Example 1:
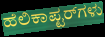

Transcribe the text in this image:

ಹೆಲಿಕಾಪ್ಟರ್‌ಗಳು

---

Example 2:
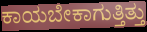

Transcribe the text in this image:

ಕಾಯಬೇಕಾಗುತ್ತಿತ್ತು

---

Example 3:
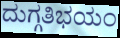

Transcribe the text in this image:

ದುಗ್ಗತಿಭಯಂ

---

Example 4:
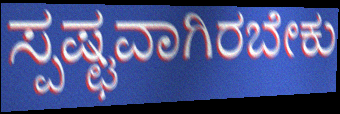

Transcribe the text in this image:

ಸ್ಪಷ್ಟವಾಗಿರಬೇಕು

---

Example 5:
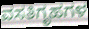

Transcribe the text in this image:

ವಸತಿಗೃಹಗಳ